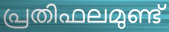
പ്രതിഫലമുണ്ട്